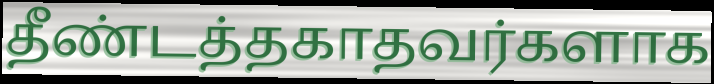
தீண்டத்தகாதவர்களாக